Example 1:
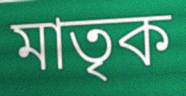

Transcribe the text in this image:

মাতৃক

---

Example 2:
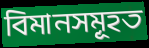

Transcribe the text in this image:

বিমানসমূহত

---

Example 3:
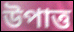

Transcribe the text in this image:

উপাত্ত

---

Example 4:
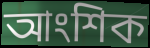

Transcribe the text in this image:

আংশিক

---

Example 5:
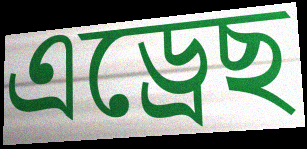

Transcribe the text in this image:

এড্ৰেছ